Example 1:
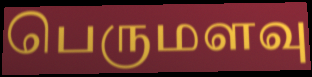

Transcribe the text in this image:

பெருமளவு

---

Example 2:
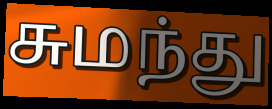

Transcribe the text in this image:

சுமந்து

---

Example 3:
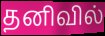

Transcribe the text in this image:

தனிவில்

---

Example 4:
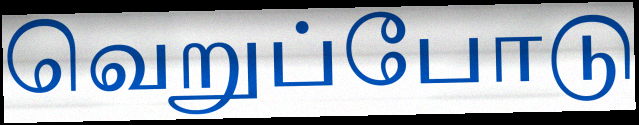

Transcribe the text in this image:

வெறுப்போடு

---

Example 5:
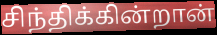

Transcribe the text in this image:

சிந்திக்கின்றான்